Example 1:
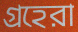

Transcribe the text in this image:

গ্রহেরা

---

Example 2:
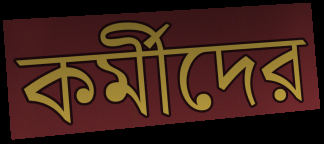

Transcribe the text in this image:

কর্মীদের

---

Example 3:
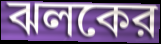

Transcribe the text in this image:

ঝলকের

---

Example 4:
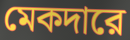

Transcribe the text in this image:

মেকদারে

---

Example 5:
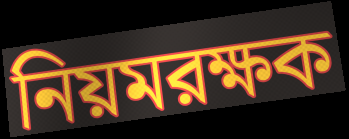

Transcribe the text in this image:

নিয়মরক্ষক